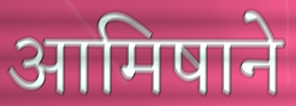
आमिषाने